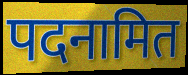
पदनामित